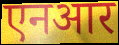
एनआर